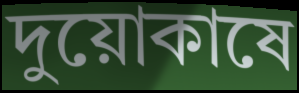
দুয়োকাষে